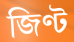
জিণ্ট